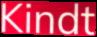
Kindt